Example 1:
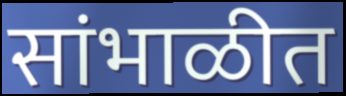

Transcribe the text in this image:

सांभाळीत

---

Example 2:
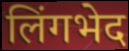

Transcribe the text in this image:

लिंगभेद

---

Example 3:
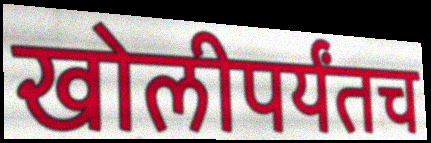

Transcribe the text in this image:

खोलीपर्यंतच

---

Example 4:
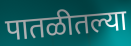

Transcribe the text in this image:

पातळीतल्या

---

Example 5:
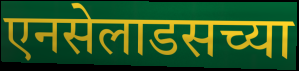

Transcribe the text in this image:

एनसेलाडसच्या